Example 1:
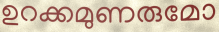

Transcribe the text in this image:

ഉറക്കമുണരുമോ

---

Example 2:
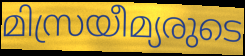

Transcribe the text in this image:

മിസ്രയീമ്യരുടെ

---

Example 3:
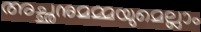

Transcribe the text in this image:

അച്ഛനുമമ്മയുമെല്ലാം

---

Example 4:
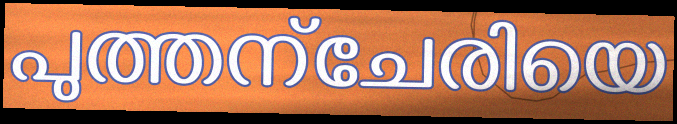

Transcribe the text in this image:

പുത്തന്ചേരിയെ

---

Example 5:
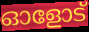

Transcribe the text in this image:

ഓളോട്